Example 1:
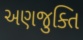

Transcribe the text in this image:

અણજુક્તિ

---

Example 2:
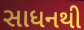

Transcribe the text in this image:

સાધનથી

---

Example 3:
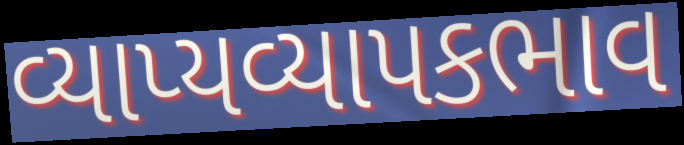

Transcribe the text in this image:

વ્યાપ્યવ્યાપકભાવ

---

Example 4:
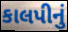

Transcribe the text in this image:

કાલપીનું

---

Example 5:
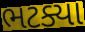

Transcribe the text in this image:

ભટક્યા